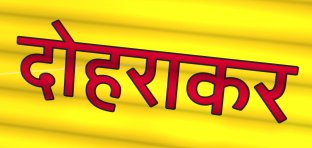
दोहराकर